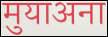
मुयाअना